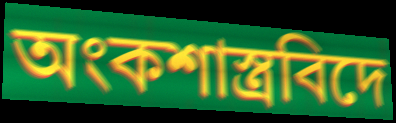
অংকশাস্ত্ৰবিদে